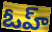
ఓహ్